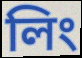
লিং